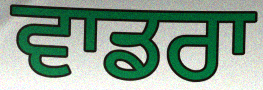
ਵਾਡਰਾ